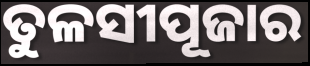
ତୁଳସୀପୂଜାର